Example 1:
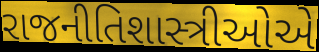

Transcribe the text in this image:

રાજનીતિશાસ્ત્રીઓએ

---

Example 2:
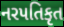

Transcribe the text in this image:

નરપતિકૃત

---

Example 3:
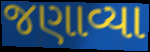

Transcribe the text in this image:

જણાવ્યા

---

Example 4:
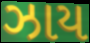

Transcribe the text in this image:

ઝાય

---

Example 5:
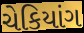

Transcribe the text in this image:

ચેકિયાંગ